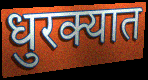
धुरक्यात